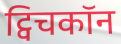
ट्विचकॉन